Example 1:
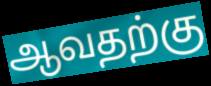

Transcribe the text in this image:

ஆவதற்கு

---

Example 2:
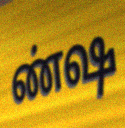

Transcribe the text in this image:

ண்ஷ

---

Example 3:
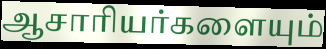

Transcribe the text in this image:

ஆசாரியர்களையும்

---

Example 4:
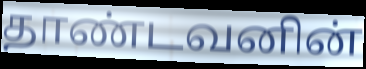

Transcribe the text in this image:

தாண்டவனின்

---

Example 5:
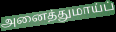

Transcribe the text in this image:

அனைத்துமாய்ப்